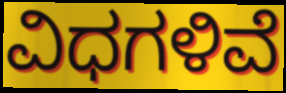
ವಿಧಗಳಿವೆ